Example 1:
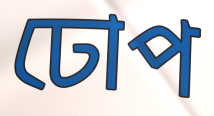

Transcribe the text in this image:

ঢোপ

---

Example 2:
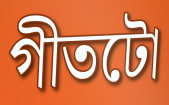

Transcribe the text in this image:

গীতটো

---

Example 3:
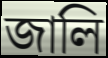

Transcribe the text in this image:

জালি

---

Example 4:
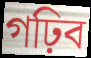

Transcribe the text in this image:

গঢ়িব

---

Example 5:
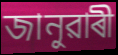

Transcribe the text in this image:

জানুৱাৰী